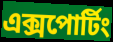
এক্সপোর্টিং